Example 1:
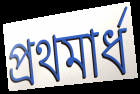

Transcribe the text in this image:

প্রথমার্ধ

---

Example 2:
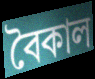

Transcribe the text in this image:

বৈকাল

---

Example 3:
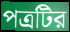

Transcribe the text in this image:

পত্রটির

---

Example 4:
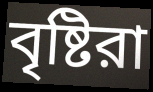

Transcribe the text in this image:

বৃষ্টিরা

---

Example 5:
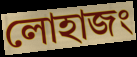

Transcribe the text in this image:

লোহাজং